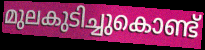
മുലകുടിച്ചുകൊണ്ട്